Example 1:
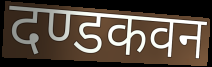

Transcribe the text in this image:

दण्डकवन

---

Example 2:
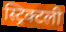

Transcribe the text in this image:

स्ट्रिक्टली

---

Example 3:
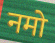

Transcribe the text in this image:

नमो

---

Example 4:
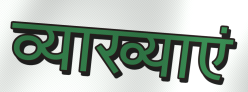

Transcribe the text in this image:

व्याख्याएं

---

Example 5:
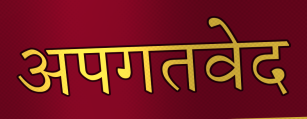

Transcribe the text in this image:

अपगतवेद